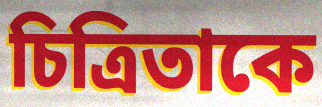
চিত্রিতাকে